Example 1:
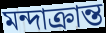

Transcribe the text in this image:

মন্দাক্রান্ত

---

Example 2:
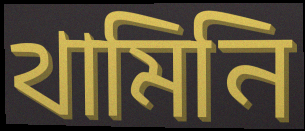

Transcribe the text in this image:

থামিনি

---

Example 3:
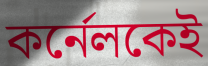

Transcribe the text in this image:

কর্নেলকেই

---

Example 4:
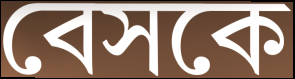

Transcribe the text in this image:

বেসকে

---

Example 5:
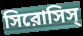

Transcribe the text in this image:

সিরোসিস্